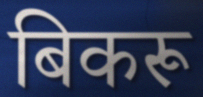
बिकरू